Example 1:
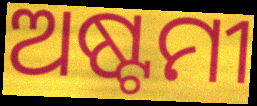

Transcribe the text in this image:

ଅଷ୍ଟମୀ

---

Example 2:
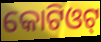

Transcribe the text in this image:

କୋଟିଓଟ୍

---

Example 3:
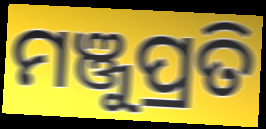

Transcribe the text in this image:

ମଞ୍ଜୁପ୍ରତି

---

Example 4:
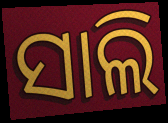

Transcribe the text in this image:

ସାଲି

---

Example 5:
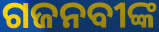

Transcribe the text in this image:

ଗଜନବୀଙ୍କ